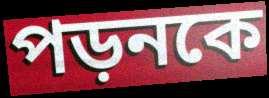
পড়নকে